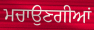
ਮਚਾਉਣਗੀਆਂ